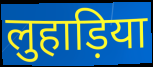
लुहाड़िया